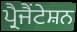
ਪ੍ਰੈਜੈਂਟੇਸ਼ਨ